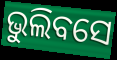
ଭୁଲିବସେ